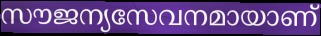
സൗജന്യസേവനമായാണ്